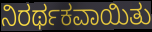
ನಿರರ್ಥಕವಾಯಿತು